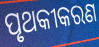
ପୃଥକୀକରଣ